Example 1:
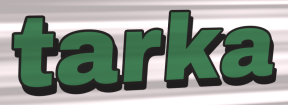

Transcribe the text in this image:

tarka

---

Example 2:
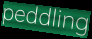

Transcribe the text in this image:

peddling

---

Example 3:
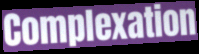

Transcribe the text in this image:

Complexation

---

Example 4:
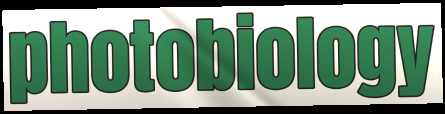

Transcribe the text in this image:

photobiology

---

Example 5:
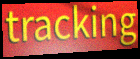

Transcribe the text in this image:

tracking